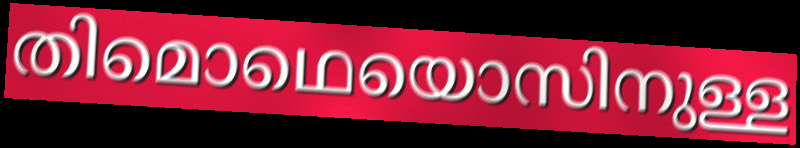
തിമൊഥെയൊസിനുള്ള